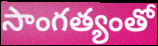
సాంగత్యంతో